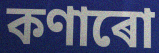
কণাৰো